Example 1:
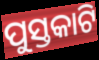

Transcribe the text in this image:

ପୁସ୍ତକାଟି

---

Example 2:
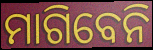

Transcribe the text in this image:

ମାଗିବେନି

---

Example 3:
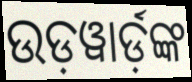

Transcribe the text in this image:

ଉଡ଼ୱାର୍ଡ଼ଙ୍କ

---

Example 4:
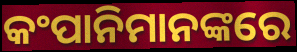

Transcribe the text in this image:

କଂପାନିମାନଙ୍କରେ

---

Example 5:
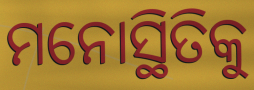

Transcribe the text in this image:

ମନୋସ୍ଥିତିକୁ